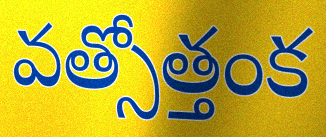
వత్సోత్తంక